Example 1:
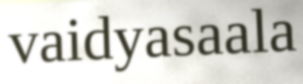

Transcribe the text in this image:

vaidyasaala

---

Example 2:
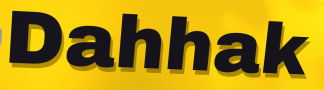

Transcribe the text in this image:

Dahhak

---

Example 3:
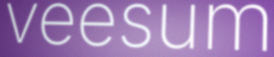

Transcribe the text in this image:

veesum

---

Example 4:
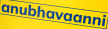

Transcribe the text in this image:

anubhavaanni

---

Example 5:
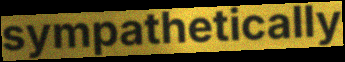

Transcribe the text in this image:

sympathetically